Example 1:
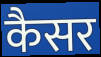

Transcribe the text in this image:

कैसर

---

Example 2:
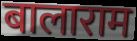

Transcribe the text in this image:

बालाराम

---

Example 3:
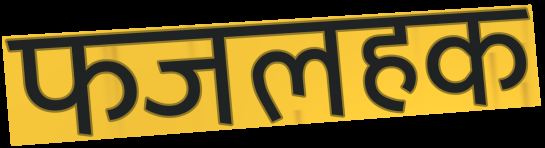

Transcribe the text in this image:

फजलहक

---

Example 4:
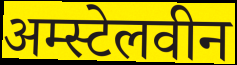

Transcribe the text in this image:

अम्स्टेलवीन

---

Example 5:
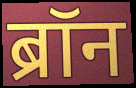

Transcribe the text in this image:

ब्रॉन